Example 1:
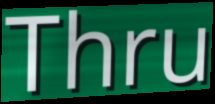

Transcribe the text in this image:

Thru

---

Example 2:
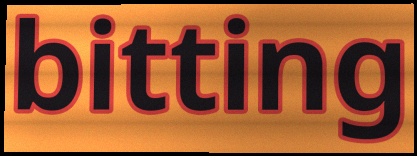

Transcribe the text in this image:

bitting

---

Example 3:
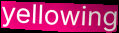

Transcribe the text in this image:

yellowing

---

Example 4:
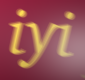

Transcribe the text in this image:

iyi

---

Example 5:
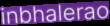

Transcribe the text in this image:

inbhalerao